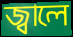
জ্বালে